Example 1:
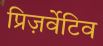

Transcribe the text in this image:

प्रिज़र्वेटिव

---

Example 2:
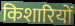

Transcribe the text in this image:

किशारियों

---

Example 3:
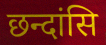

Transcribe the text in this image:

छन्दांसि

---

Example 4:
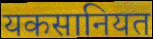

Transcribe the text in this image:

यकसानियत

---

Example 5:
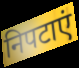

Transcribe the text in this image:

निपटाएं